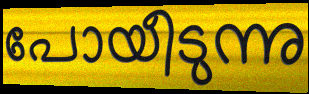
പോയീടുന്നു